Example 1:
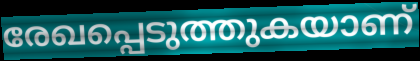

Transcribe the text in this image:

രേഖപ്പെടുത്തുകയാണ്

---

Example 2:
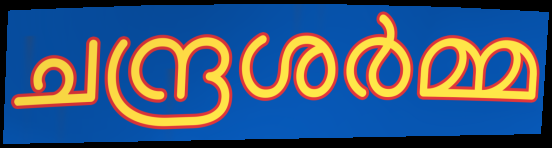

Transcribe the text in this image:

ചന്ദ്രശർമ്മ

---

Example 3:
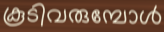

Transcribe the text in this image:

കൂടിവരുമ്പോൾ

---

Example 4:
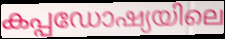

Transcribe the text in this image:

കപ്പഡോഷ്യയിലെ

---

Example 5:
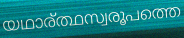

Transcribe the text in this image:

യഥാര്ത്ഥസ്വരൂപത്തെ